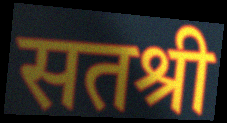
सतश्री